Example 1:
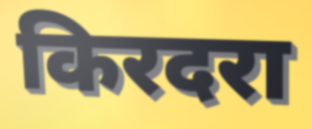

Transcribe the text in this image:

किरदरा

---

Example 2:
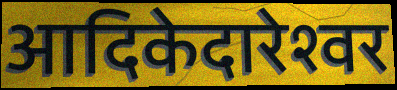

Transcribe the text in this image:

आदिकेदारेश्वर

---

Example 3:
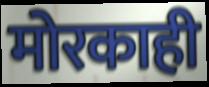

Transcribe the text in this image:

मोरकाही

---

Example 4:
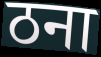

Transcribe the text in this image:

ठना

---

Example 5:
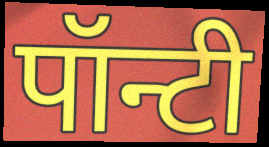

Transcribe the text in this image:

पॉन्टी